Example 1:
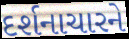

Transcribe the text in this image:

દર્શનાચારને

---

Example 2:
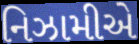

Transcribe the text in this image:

નિઝામીએ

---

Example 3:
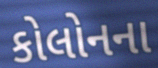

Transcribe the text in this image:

કોલોનના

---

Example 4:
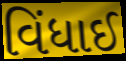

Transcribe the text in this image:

વિંધાઈ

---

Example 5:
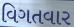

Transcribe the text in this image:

વિગતવાર